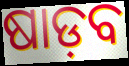
ଷାଡ଼ବ